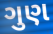
ગુણ